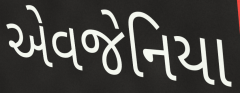
એવજેનિયા